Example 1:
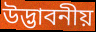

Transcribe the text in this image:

উদ্ভাবনীয়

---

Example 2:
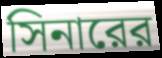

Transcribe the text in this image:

সিনারের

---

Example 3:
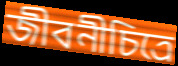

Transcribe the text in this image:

জীবনীচিত্রে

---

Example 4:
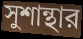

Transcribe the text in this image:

সুশান্থার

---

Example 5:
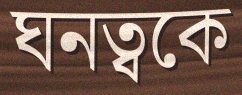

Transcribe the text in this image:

ঘনত্বকে